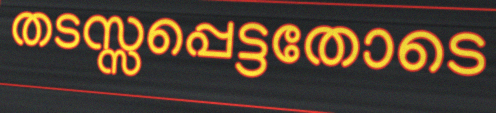
തടസ്സപ്പെട്ടതോടെ